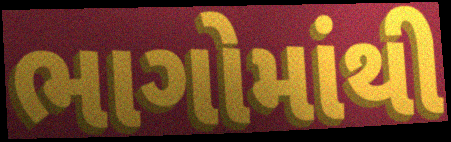
ભાગોમાંથી